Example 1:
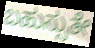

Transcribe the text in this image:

ಬಹುಸ್ಸುತೇ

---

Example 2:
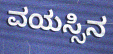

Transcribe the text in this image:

ವಯಸ್ಸಿನ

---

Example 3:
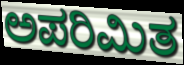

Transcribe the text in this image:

ಅಪರಿಮಿತ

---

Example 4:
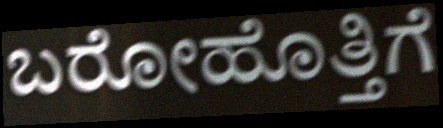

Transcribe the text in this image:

ಬರೋಹೊತ್ತಿಗೆ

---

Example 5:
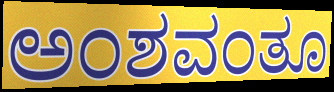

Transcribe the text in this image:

ಅಂಶವಂತೂ